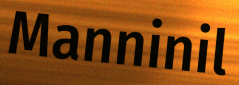
Manninil